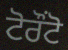
ਟੋਰੌੰਟੋ